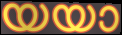
യയാ